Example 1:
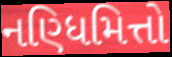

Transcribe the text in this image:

નણ્ધિમિત્તો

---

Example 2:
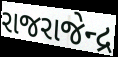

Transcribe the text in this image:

રાજરાજેન્દ્ર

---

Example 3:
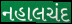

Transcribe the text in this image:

નહાલચંદ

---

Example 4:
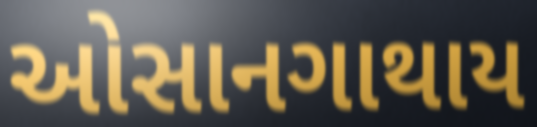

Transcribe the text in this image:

ઓસાનગાથાય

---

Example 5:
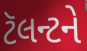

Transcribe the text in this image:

ટૅલન્ટને